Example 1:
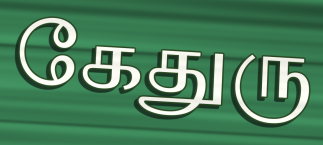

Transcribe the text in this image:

கேதுரு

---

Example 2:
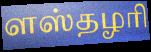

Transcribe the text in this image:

ளஸ்தழரி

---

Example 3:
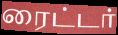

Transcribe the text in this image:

ரைட்டர்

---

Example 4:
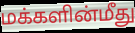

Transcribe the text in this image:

மக்களின்மீது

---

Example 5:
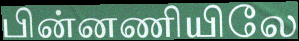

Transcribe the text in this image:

பின்னணியிலே